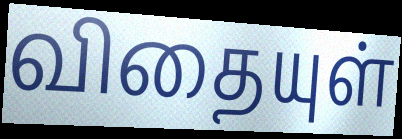
விதையுள்